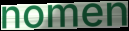
nomen